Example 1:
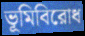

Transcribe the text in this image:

ভূমিবিরোধ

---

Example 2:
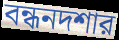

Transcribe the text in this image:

বন্ধনদশার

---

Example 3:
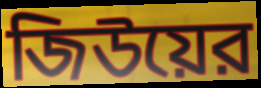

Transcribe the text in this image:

জিউয়ের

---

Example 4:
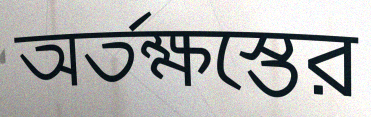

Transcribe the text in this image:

অর্তক্ষস্তের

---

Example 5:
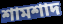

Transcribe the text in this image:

শামশাদ